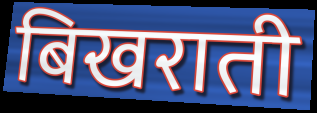
बिखराती